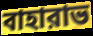
বাহারাভ